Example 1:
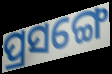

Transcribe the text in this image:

ପ୍ରସଙ୍ଗେ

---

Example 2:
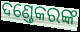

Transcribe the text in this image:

ଦଣ୍ଡେକରଙ୍କ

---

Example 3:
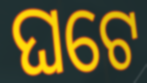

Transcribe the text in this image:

ଘଟେ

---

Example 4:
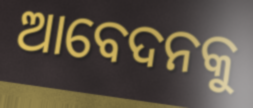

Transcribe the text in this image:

ଆବେଦନକୁ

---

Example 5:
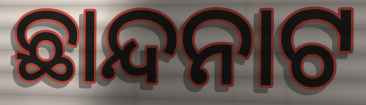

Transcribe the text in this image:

ଛାନ୍ଦନାଟ